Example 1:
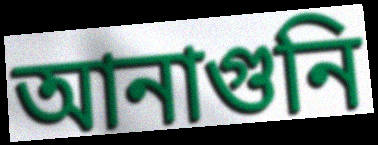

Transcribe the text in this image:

আনাগুনি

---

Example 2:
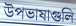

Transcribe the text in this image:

উপভাষাগুলি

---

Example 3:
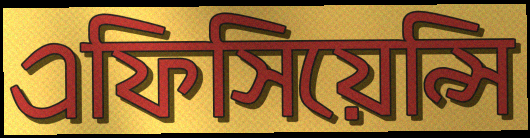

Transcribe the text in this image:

এফিসিয়েন্সি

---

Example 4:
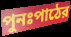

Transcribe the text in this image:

পুনঃপাঠের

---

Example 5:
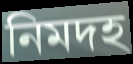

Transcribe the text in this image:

নিমদহ